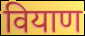
वियाण